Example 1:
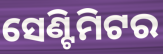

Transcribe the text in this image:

ସେଣ୍ଟିମିଟର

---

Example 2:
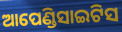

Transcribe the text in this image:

ଆପେଣ୍ଡିସାଇଟିସ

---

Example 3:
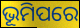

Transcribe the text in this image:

ଭୂମିପରେ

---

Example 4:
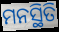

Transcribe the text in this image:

ମନସ୍ଥିତି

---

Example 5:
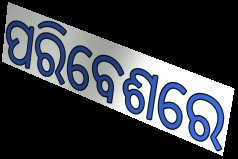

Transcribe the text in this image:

ପରିବେଶରେ